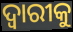
ଦ୍ଵାରୀକୁ